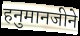
हनुमानजीने